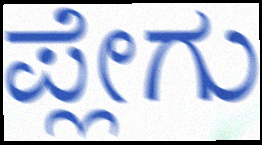
ಪ್ಲೇಗು